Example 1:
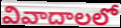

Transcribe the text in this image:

వివాదాలలో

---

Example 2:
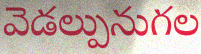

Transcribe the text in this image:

వెడల్పునుగల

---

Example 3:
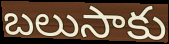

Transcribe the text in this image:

బలుసాకు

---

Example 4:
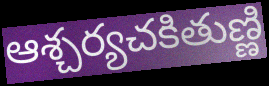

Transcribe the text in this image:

ఆశ్చర్యచకితుణ్ణి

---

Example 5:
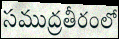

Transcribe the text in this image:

సముద్రతీరంలో